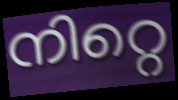
നിറ്റെ